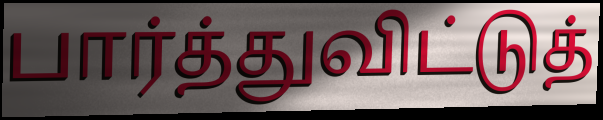
பார்த்துவிட்டுத்